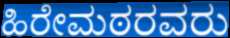
ಹಿರೇಮಠರವರು